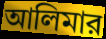
আলিমার